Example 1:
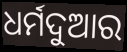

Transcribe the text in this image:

ଧର୍ମଦୁଆର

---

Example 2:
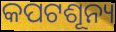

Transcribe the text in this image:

କପଟଶୂନ୍ୟ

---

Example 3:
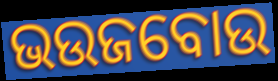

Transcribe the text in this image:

ଭଉଜବୋଉ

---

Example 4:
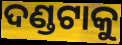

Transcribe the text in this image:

ଦଣ୍ଡଟାକୁ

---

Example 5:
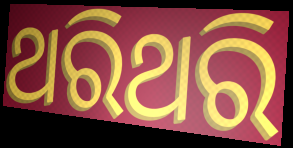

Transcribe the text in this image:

ଥରିଥରି